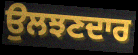
ਉਲਝਣਦਾਰ